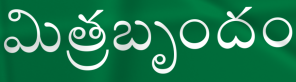
మిత్రబృందం